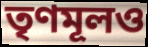
তৃণমূলও